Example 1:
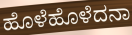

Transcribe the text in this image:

ಹೊಳೆಹೊಳೆದನಾ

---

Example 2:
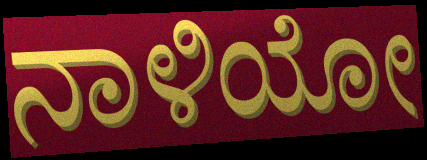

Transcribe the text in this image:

ನಾಳಿಯೋ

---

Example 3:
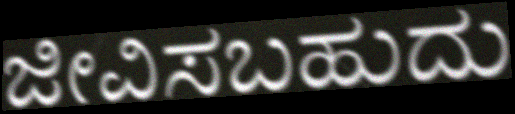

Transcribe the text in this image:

ಜೀವಿಸಬಹುದು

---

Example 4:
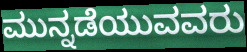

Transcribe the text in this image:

ಮುನ್ನಡೆಯುವವರು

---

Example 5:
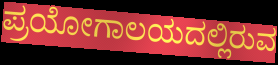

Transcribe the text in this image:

ಪ್ರಯೋಗಾಲಯದಲ್ಲಿರುವ